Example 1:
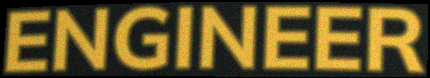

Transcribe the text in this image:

ENGINEER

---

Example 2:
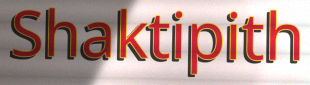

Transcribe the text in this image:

Shaktipith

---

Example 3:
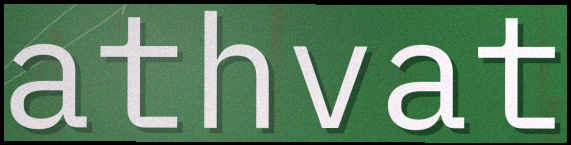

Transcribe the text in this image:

athvat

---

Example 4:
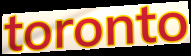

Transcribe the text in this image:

toronto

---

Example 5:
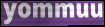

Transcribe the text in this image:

yommuu